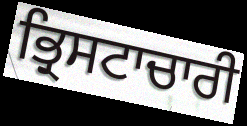
ਭ੍ਰਿਸਟਾਚਾਰੀ